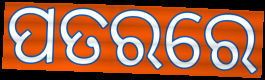
ପତରରେ